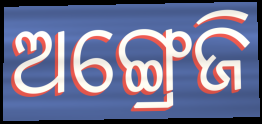
ଅଙ୍ଗ୍ରେଜି